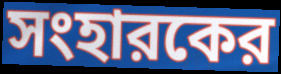
সংহারকের